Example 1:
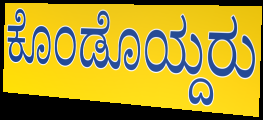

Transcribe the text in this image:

ಕೊಂಡೊಯ್ದರು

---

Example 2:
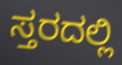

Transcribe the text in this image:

ಸ್ತರದಲ್ಲಿ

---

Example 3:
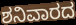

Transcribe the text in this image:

ಶನಿವಾರದ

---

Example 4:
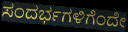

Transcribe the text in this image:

ಸಂದರ್ಭಗಳಿಗೆಂದೇ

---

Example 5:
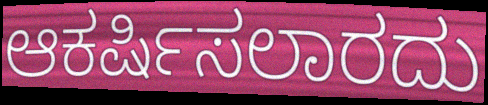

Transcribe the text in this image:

ಆಕರ್ಷಿಸಲಾರದು